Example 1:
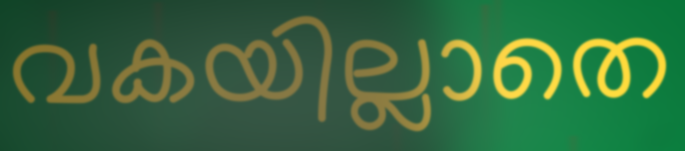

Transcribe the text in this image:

വകയില്ലാതെ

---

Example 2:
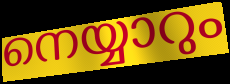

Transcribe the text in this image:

നെയ്യാറും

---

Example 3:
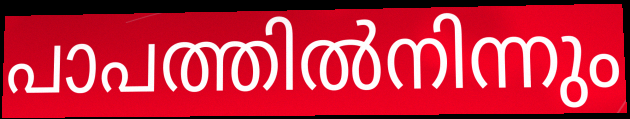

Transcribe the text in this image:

പാപത്തിൽനിന്നും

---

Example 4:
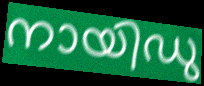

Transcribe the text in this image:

നായിഡു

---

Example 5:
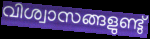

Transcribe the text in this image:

വിശ്വാസങ്ങളുണ്ടു്